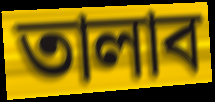
তালাব